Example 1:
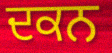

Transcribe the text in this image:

ਦਕਨ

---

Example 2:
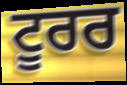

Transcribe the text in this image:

ਟੂਰਰ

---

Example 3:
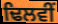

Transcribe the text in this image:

ਢਿਲਵੀਂ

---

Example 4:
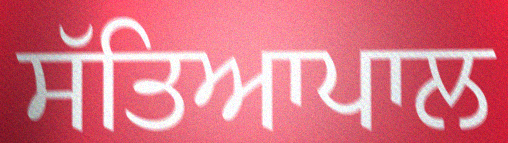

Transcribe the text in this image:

ਸੱਤਿਆਪਾਲ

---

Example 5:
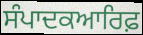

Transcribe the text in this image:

ਸੰਪਾਦਕਆਰਿਫ਼